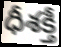
ధీశక్తీ